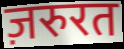
ज़रुरत